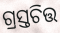
ଗ୍ରସ୍ତଚିତ୍ତ